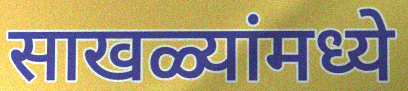
साखळ्यांमध्ये